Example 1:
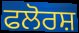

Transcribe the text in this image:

ਫਲੋਰਸ਼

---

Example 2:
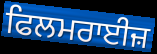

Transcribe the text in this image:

ਫਿਲਮਰਾਈਜ਼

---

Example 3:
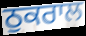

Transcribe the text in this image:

ਠੁਕਰਾਲ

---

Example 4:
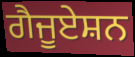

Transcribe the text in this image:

ਗੈਜੂਏਸ਼ਨ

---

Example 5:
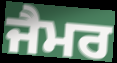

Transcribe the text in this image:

ਜੈਮਰ